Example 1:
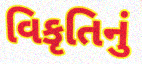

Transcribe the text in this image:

વિકૃતિનું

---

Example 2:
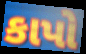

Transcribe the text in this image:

કાપો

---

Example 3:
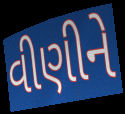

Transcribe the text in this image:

વીણીને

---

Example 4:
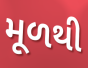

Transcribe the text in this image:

મૂળથી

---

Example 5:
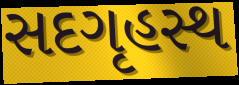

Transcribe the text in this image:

સદગૃહસ્થ